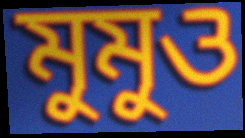
মুমুও